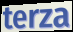
terza